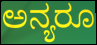
ಅನ್ಯರೂ